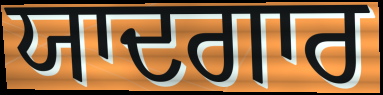
ਯਾਦਗਾਰ